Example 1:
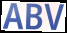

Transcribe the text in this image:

ABV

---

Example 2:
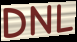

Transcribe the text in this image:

DNL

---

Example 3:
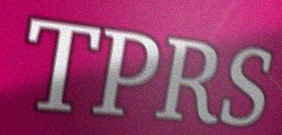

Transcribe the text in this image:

TPRS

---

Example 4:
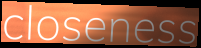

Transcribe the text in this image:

closeness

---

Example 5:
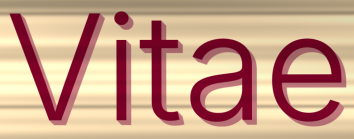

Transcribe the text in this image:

Vitae